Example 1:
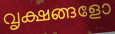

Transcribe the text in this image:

വൃക്ഷങ്ങളോ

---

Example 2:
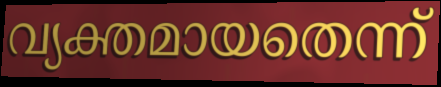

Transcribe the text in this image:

വ്യക്തമായതെന്ന്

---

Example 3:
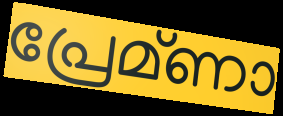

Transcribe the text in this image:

പ്രേമ്ണാ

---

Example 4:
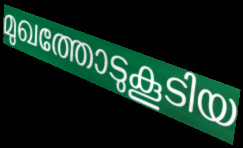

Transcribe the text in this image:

മുഖത്തോടുകൂടിയ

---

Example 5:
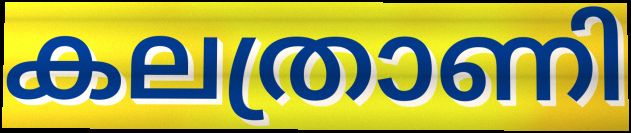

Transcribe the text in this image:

കലത്രാണി